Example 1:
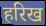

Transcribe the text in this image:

हरिख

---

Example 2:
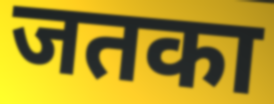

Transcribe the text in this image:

जतका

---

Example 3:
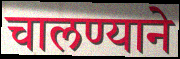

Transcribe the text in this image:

चालण्याने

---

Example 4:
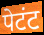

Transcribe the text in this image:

पेटंट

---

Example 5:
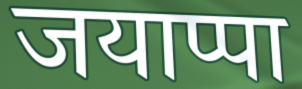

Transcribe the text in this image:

जयाप्पा